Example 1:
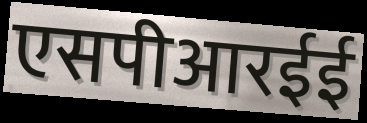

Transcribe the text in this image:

एसपीआरईई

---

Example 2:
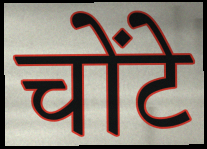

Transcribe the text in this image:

चोंटे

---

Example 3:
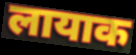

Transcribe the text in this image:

लायाक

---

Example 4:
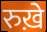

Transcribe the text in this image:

रुख़े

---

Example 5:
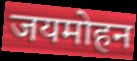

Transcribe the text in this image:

जयमोहन